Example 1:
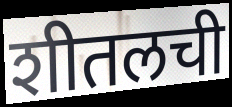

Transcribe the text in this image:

शीतलची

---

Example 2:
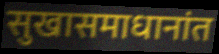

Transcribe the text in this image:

सुखासमाधानांत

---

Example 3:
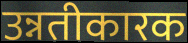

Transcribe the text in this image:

उन्नतीकारक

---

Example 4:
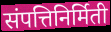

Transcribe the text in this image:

संपत्तिनिर्मिती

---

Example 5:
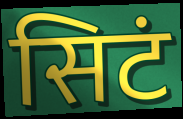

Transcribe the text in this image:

सिटं